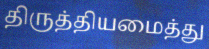
திருத்தியமைத்து